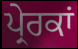
ਪ੍ਰੇਰਕਾਂ